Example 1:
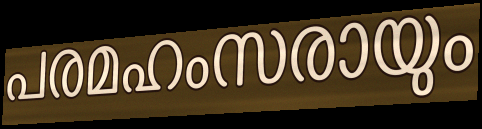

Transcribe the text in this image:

പരമഹംസരായും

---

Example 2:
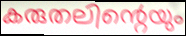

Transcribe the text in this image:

കരുതലിന്റെയും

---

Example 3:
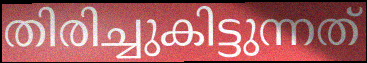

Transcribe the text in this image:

തിരിച്ചുകിട്ടുന്നത്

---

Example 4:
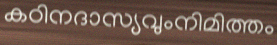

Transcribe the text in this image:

കഠിനദാസ്യവുംനിമിത്തം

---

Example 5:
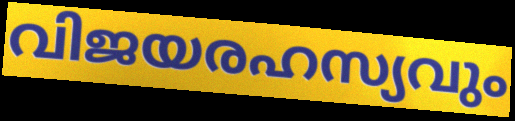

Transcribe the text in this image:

വിജയരഹസ്യവും